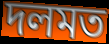
দলমত